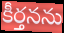
కీర్తనను